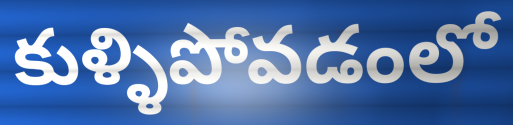
కుళ్ళిపోవడంలో